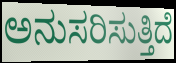
ಅನುಸರಿಸುತ್ತಿದೆ